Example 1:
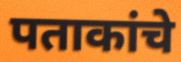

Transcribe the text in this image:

पताकांचे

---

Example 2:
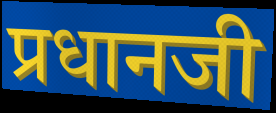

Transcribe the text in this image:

प्रधानजी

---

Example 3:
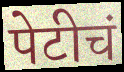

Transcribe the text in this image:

पेटीचं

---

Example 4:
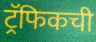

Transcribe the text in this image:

ट्रॅफिकची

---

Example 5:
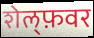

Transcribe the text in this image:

शेल्फ़वर